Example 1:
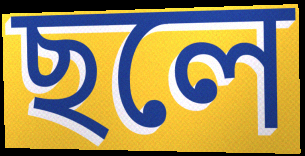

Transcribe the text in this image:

ছলে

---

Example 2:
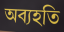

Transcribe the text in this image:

অব্যহতি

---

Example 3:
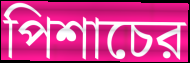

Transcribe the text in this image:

পিশাচের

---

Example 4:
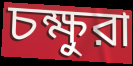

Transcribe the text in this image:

চক্ষুরা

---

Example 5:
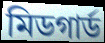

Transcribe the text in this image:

মিডগার্ড